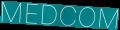
MEDCOM